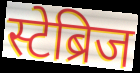
स्टेब्रिज